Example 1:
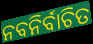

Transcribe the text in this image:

ନବନିର୍ବାଚିତ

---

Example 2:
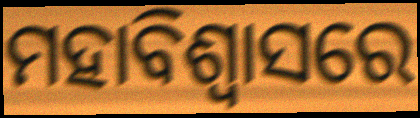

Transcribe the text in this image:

ମହାବିଶ୍ୱାସରେ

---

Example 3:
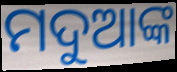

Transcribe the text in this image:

ମଦୁଆଙ୍କ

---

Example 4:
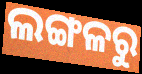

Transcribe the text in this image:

ଲଙ୍ଗଳରୁ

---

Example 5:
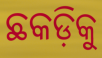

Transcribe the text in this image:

ଛକଡ଼ିକୁ